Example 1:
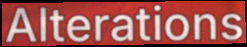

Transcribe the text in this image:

Alterations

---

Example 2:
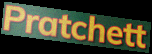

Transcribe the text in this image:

Pratchett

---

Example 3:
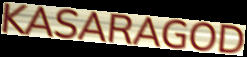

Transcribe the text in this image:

KASARAGOD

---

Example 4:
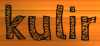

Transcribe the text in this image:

kulir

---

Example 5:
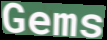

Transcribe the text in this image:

Gems